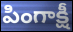
పింగాక్షీ